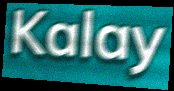
Kalay